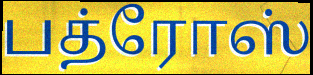
பத்ரோஸ்